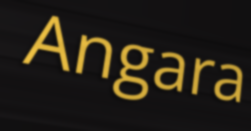
Angara